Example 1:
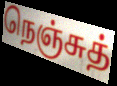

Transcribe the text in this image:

நெஞ்சுத்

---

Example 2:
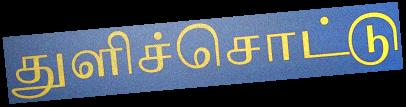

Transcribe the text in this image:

துளிச்சொட்டு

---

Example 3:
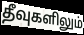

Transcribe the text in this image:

தீவுகளிலும்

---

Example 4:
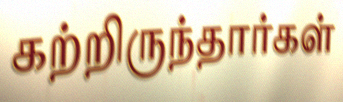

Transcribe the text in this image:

கற்றிருந்தார்கள்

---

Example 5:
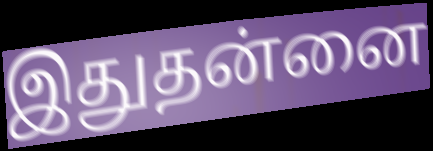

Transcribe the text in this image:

இதுதன்னை